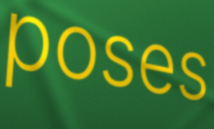
poses